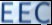
EEC